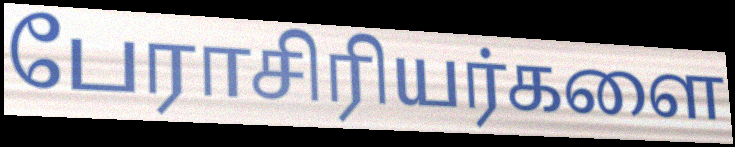
பேராசிரியர்களை